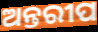
ଅନ୍ତରୀପ